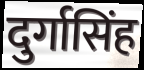
दुर्गासिंह